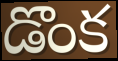
డొంక